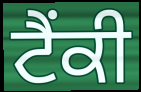
ਟੈਂਕੀ